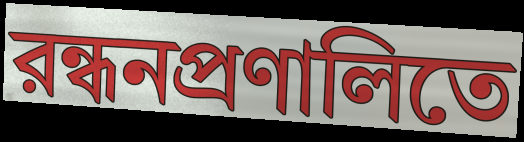
রন্ধনপ্রণালিতে